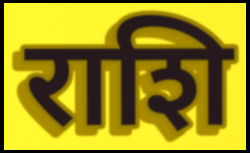
राशि